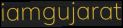
iamgujarat